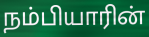
நம்பியாரின்